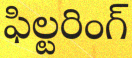
ఫిల్టరింగ్